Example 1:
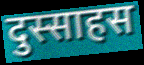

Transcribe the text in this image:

दुस्साहस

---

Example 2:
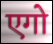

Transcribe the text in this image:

एगो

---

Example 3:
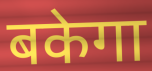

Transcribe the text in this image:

बकेगा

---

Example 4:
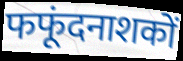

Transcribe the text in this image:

फफूंदनाशकों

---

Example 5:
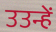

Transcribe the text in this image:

उउन्हें